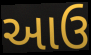
આઉ